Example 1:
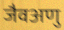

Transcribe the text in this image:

जैवअणु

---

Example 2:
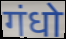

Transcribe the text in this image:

गंधो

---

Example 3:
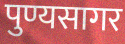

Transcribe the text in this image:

पुण्यसागर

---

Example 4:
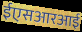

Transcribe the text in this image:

ईएसआरआई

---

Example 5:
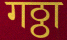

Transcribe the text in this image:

गठ्ठा